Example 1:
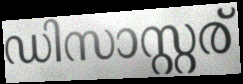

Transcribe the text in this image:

ഡിസാസ്റ്റര്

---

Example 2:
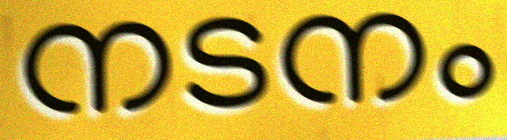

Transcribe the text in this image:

നടനം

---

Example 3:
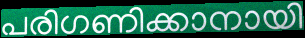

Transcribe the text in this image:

പരിഗണിക്കാനായി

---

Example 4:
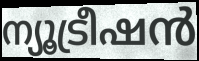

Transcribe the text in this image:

ന്യൂട്രീഷൻ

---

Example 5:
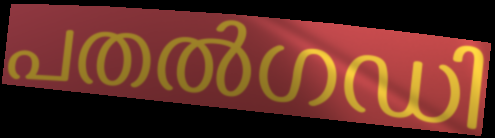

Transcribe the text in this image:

പതൽഗഡി